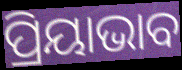
ପ୍ରିୟାଭାବ